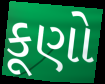
કૂણો